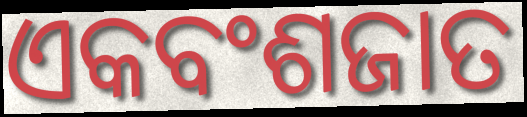
ଏକବଂଶଜାତ